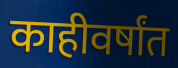
काहीवर्षांत